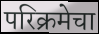
परिक्रमेचा